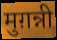
मुग़न्नी